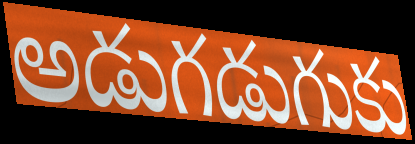
అడుగడుగుకు